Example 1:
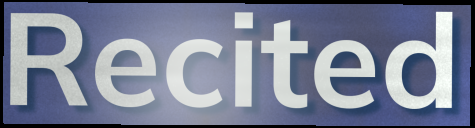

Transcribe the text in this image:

Recited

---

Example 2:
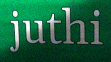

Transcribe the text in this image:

juthi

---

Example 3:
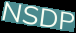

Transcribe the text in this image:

NSDP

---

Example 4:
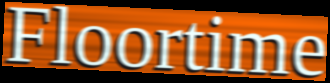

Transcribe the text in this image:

Floortime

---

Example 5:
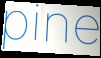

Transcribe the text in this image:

pine